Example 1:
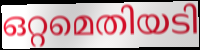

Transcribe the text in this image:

ഒറ്റമെതിയടി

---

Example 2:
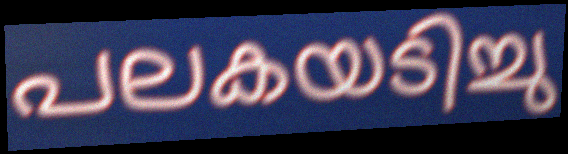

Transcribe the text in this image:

പലകയടിച്ചു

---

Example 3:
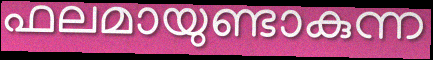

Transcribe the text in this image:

ഫലമായുണ്ടാകുന്ന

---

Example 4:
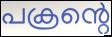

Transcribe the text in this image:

പക്രന്റെ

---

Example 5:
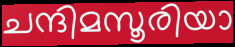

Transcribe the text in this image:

ചന്ദിമസൂരിയാ